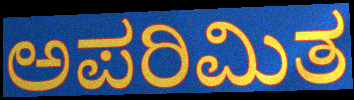
ಅಪರಿಮಿತ